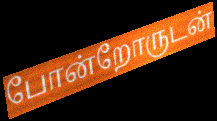
போன்றோருடன்